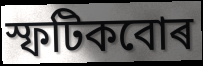
স্ফটিকবোৰ